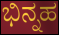
ಭಿನ್ನಹ